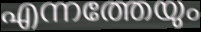
എന്നത്തേയും